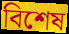
বিশেষ